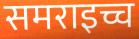
समराइच्च